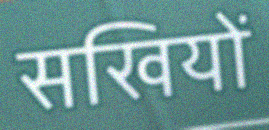
सखियों